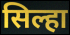
सिल्हा